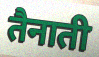
तैनाती